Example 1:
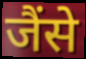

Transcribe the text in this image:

जैंसे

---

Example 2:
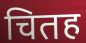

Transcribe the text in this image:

चितह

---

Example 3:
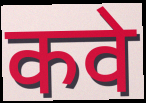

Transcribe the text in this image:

कवे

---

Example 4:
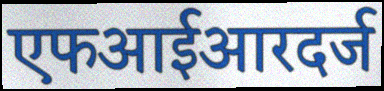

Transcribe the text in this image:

एफआईआरदर्ज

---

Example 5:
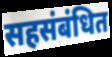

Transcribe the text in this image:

सहसंबंधित